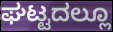
ಘಟ್ಟದಲ್ಲೂ